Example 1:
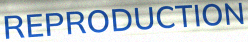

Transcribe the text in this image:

REPRODUCTION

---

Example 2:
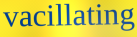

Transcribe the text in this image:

vacillating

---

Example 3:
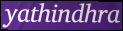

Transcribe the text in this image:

yathindhra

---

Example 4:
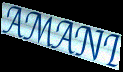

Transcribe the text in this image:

AMANI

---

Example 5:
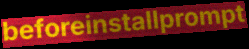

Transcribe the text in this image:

beforeinstallprompt